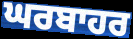
ਘਰਬਾਹਰ